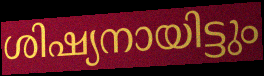
ശിഷ്യനായിട്ടും